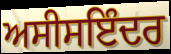
ਅਸੀਸਇੰਦਰ